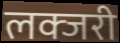
लक्‍जरी